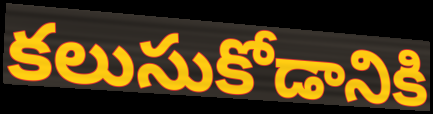
కలుసుకోడానికి